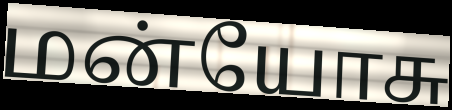
மன்யோசு